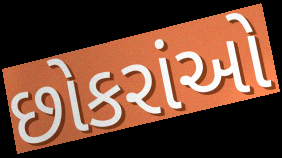
છોકરાંઓ